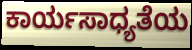
ಕಾರ್ಯಸಾಧ್ಯತೆಯ